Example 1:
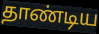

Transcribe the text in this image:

தாண்டிய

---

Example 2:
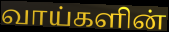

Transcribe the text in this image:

வாய்களின்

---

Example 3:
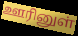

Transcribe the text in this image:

ஊரினுள்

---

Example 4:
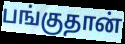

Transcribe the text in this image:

பங்குதான்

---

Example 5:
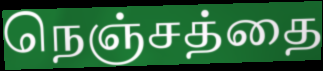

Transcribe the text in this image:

நெஞ்சத்தை